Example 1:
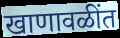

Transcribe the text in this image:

खाणावळींत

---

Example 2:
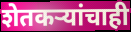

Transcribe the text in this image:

शेतकऱ्यांचाही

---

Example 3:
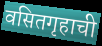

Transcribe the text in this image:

वसितगृहाची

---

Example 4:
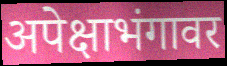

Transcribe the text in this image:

अपेक्षाभंगावर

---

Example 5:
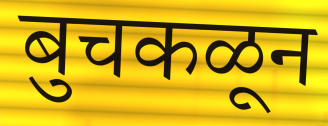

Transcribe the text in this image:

बुचकळून